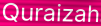
Quraizah